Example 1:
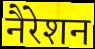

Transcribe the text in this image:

नैरेशन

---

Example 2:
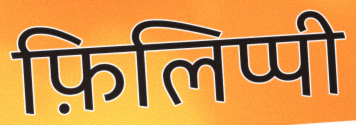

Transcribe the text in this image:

फ़िलिप्पी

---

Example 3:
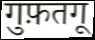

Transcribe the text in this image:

गुफ़तगू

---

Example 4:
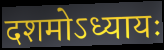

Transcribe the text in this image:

दशमोऽध्यायः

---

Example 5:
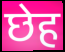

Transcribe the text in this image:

छेह